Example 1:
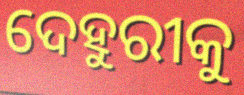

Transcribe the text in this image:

ଦେହୁରୀକୁ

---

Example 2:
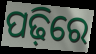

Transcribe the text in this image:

ପଢ଼ିରେ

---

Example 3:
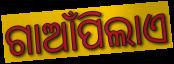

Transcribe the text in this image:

ଗାଆଁପିଲାଏ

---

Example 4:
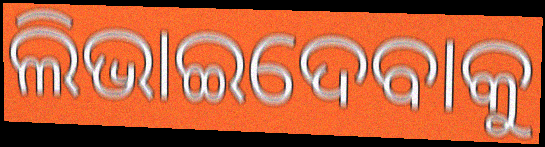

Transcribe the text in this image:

ଲିଭାଇଦେବାକୁ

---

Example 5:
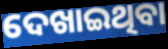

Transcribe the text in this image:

ଦେଖାଇଥିବା